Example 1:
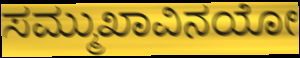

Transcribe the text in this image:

ಸಮ್ಮುಖಾವಿನಯೋ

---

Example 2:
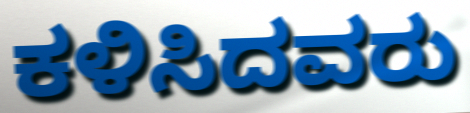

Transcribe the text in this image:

ಕಳಿಸಿದವರು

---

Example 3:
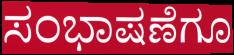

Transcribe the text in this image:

ಸಂಭಾಷಣೆಗೂ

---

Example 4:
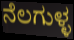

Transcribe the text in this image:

ನೆಲಗುಳ್ಳ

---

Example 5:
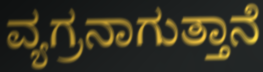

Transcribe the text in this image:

ವ್ಯಗ್ರನಾಗುತ್ತಾನೆ